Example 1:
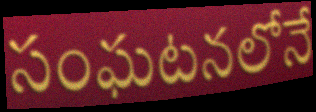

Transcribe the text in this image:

సంఘటనలోనే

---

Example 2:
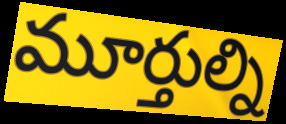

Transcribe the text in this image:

మూర్తుల్ని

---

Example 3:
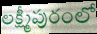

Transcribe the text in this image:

లక్ష్మీపురంలో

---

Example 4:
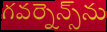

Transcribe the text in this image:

గవర్నెన్స్‌ను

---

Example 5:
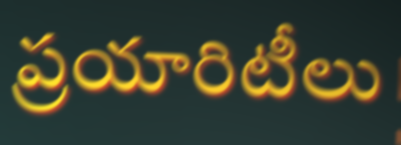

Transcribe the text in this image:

ప్రయారిటీలు